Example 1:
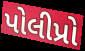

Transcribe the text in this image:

પોલીપ્રો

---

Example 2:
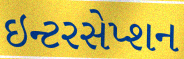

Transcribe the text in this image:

ઇન્ટરસેપ્શન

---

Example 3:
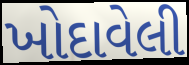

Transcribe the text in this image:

ખોદાવેલી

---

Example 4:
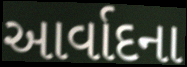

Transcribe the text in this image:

આર્વાદના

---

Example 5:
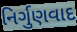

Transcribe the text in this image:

નિર્ગુણવાદ